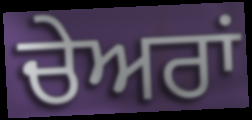
ਚੇਅਰਾਂ